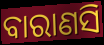
ବାରାଣସି